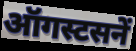
ऑगस्टसनें